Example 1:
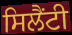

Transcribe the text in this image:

ਸਿਲੈਂਟੀ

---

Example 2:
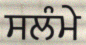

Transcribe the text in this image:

ਸਲੰਮੇ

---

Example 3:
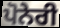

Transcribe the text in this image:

ਪੋਨੇਰੀ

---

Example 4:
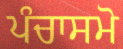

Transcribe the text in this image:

ਪੰਚਾਸਮੋ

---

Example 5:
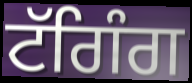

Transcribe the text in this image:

ਟੱਗਿੰਗ